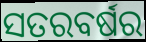
ସତରବର୍ଷର